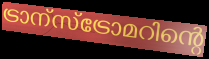
ട്രാന്സ്ട്രോമറിന്റെ